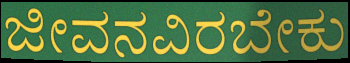
ಜೀವನವಿರಬೇಕು